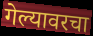
गेल्यावरचा